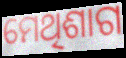
ମେଥିଶାଗ